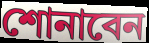
শোনাবেন